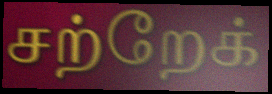
சற்றேக்